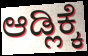
ಆಡ್ಲಿಕ್ಕೆ